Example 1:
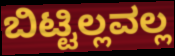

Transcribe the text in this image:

ಬಿಟ್ಟಿಲ್ಲವಲ್ಲ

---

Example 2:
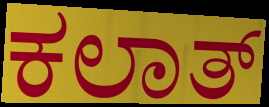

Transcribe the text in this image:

ಕಲಾತ್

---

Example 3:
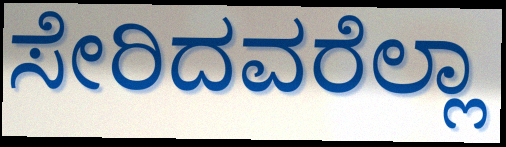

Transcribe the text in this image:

ಸೇರಿದವರೆಲ್ಲಾ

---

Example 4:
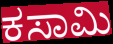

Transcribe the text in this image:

ಕಸಾಮಿ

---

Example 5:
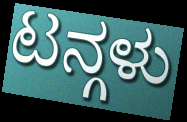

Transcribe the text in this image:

ಟನ್ಗಳು